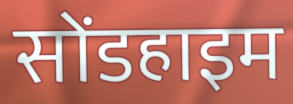
सोंडहाइम